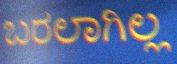
ಬರಲಾಗಿಲ್ಲ